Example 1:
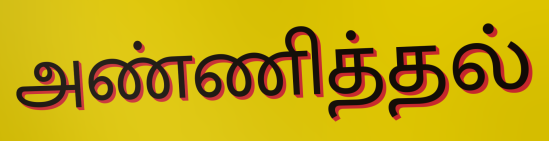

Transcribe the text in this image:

அண்ணித்தல்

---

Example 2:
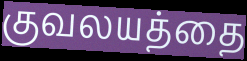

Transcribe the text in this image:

குவலயத்தை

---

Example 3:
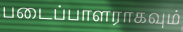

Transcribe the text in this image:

படைப்பாளராகவும்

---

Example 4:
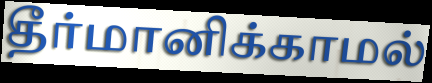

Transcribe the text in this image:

தீர்மானிக்காமல்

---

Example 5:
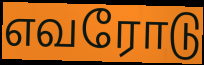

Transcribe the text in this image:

எவரோடு